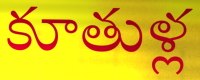
కూతుళ్ల